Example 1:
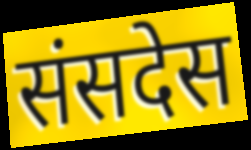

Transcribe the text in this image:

संसदेस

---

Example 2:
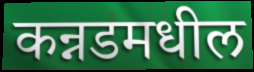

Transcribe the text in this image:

कन्नडमधील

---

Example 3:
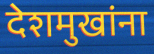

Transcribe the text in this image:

देशमुखांना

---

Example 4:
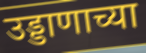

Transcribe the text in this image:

उड्डाणाच्या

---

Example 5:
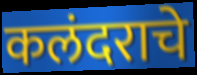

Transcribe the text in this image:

कलंदराचे